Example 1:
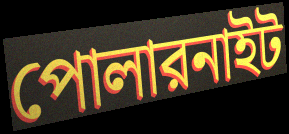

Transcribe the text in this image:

পোলারনাইট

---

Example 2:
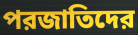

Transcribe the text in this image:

পরজাতিদের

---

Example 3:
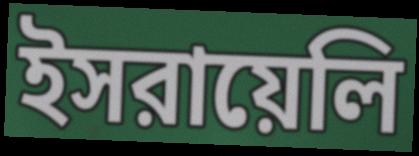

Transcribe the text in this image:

ইসরায়েলি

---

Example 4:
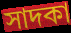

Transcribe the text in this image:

সাদকা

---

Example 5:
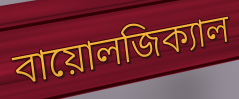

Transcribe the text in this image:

বায়োলজিক্যাল